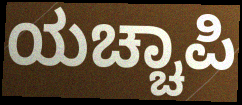
ಯಚ್ಚಾಪಿ